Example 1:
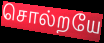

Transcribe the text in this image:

சொல்றயே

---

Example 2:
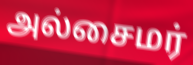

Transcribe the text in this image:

அல்சைமர்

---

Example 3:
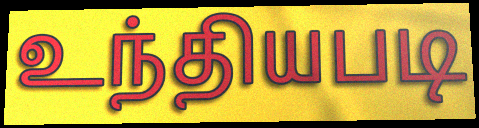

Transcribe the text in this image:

உந்தியபடி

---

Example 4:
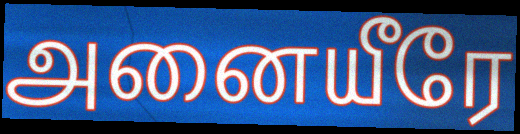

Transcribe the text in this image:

அனையீரே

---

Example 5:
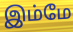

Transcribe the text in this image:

இம்மே